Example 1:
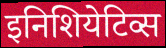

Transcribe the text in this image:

इनिशियेटिव्स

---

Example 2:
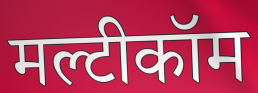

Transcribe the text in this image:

मल्टीकॉम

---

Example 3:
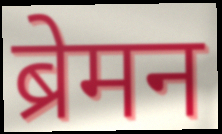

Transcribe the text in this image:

ब्रेमन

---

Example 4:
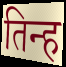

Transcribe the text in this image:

तिन्ह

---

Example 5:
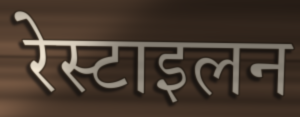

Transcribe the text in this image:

रेस्टाइलन